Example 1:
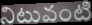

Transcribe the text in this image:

నిటువంటి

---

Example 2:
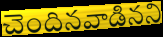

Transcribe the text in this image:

చెందినవాడినని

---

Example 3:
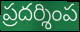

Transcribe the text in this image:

ప్రదర్శింప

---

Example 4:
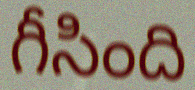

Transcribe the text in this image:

గీసింది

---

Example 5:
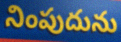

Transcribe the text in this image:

నింపుదును